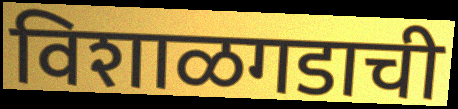
विशाळगडाची